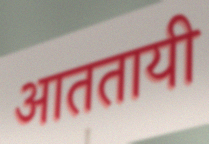
आततायी